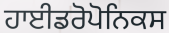
ਹਾਈਡਰੋਪੋਨਿਕਸ